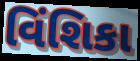
વિંશિકા